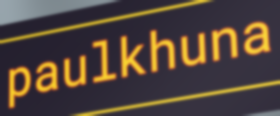
paulkhuna